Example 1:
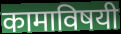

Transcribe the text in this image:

कामाविषयी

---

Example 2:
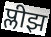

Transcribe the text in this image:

प्लीझ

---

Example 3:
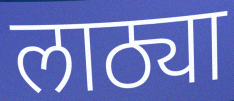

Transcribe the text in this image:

लाठ्या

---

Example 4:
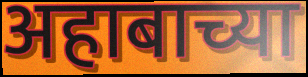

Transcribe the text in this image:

अहाबाच्या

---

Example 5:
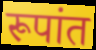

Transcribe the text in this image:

रूपांत